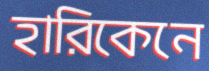
হারিকেনে